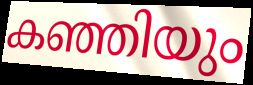
കഞ്ഞിയും